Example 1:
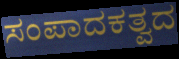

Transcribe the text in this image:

ಸಂಪಾದಕತ್ವದ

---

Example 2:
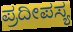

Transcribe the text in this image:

ಪ್ರದೀಪಸ್ಯ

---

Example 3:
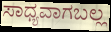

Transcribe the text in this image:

ಸಾಧ್ಯವಾಗಬಲ್ಲ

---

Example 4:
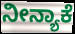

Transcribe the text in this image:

ನೀನ್ಯಾಕೆ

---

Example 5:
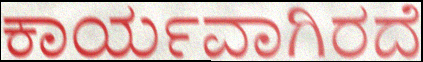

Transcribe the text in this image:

ಕಾರ್ಯವಾಗಿರದೆ